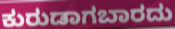
ಕುರುಡಾಗಬಾರದು